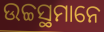
ଉଚ୍ଚସ୍ଥମାନେ